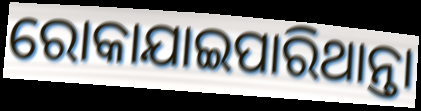
ରୋକାଯାଇପାରିଥାନ୍ତା